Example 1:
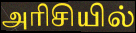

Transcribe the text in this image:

அரிசியில்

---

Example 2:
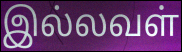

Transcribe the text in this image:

இல்லவள்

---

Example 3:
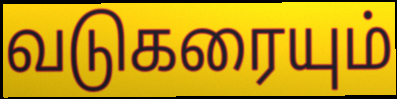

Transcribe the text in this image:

வடுகரையும்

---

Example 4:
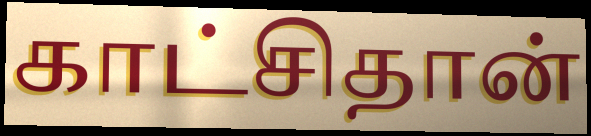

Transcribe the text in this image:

காட்சிதான்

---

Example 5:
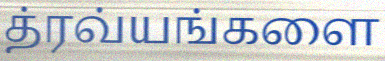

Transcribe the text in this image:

த்ரவ்யங்களை